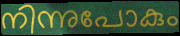
നിന്നുപോകും